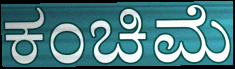
ಕಂಚಿಮೆ